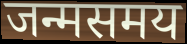
जन्मसमय